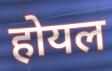
होयल